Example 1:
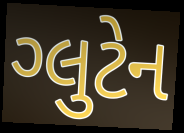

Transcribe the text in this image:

ગ્લુટેન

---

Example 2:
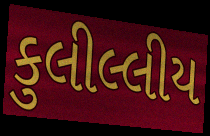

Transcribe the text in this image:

કુલીલ્લીય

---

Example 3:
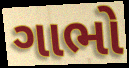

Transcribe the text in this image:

ગાભો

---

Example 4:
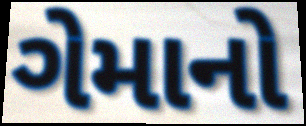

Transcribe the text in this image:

ગેમાનો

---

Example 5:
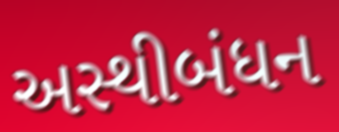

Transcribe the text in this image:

અસ્થીબંધન